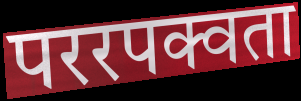
पररपक्वता